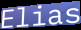
Elias